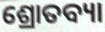
ଶ୍ରୋତବ୍ୟା